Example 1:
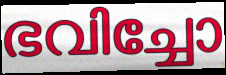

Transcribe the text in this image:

ഭവിച്ചോ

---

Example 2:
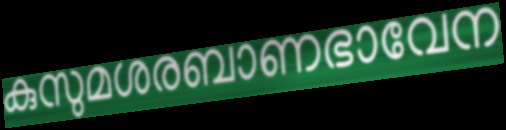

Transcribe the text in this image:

കുസുമശരബാണഭാവേന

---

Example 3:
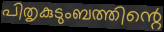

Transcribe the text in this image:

പിതൃകുടുംബത്തിന്റെ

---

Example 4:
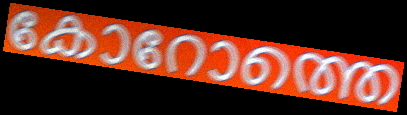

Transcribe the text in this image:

കോറോത്തെ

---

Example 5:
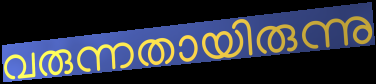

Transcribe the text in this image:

വരുന്നതായിരുന്നു